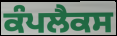
ਕੰਪਲੈਕਸ